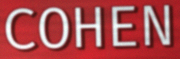
COHEN